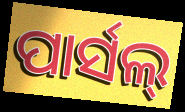
ପାର୍ସଲ୍